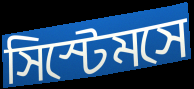
সিস্টেমসে